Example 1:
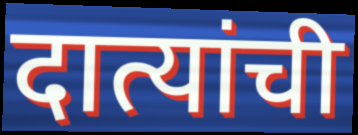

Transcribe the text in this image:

दात्यांची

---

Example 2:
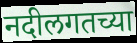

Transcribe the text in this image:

नदीलगतच्या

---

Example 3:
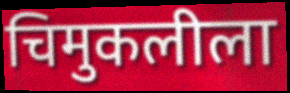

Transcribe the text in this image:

चिमुकलीला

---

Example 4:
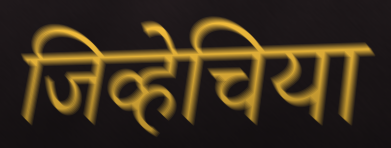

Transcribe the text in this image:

जिव्हेचिया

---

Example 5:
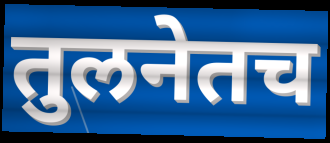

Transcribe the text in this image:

तुलनेतच